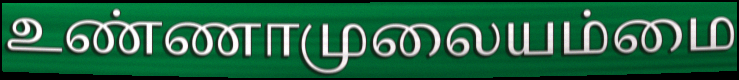
உண்ணாமுலையம்மை